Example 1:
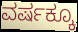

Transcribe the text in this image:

ವರ್ಷಕ್ಕೂ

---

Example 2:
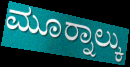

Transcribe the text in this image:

ಮೂರ‍್ನಾಲ್ಕು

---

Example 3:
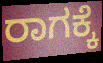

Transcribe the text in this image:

ರಾಗಕ್ಕೆ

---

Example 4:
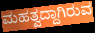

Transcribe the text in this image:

ಮಹತ್ವದ್ದಾಗಿರುವ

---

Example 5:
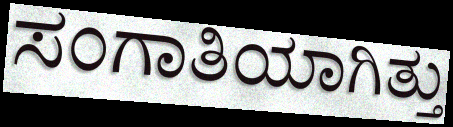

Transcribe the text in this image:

ಸಂಗಾತಿಯಾಗಿತ್ತು